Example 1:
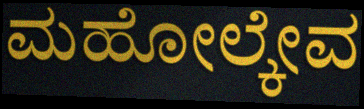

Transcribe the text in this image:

ಮಹೋಲ್ಕೇವ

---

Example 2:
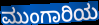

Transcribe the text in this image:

ಮುಂಗಾರಿಯ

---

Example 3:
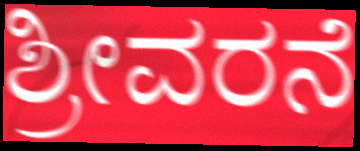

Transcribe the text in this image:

ಶ್ರೀವರನೆ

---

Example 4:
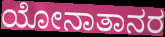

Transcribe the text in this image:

ಯೋನಾತಾನರ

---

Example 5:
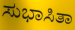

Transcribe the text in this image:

ಸುಭಾಸಿತಾ